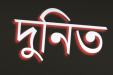
দুনিত